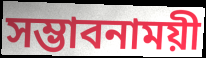
সম্ভাবনাময়ী